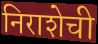
निराशेची